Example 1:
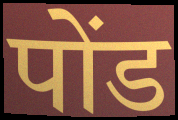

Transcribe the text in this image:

पोंड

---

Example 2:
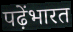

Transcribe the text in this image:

पढ़ेंभारत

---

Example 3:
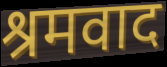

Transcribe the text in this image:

श्रमवाद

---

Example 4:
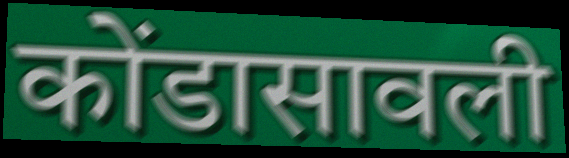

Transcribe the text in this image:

कोंडासावली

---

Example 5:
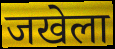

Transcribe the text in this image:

जखेला